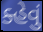
ક્હેવું